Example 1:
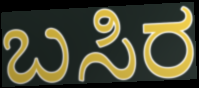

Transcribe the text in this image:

ಬಸಿರ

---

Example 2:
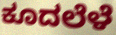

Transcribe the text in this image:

ಕೂದಲೆಳೆ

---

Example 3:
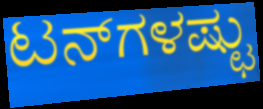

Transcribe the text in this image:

ಟನ್‌ಗಳಷ್ಟು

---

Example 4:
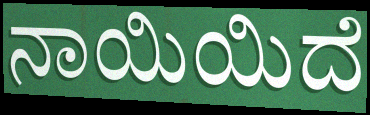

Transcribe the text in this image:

ನಾಯಿಯಿದೆ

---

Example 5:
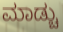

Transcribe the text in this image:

ಮಾಡ್ಚು